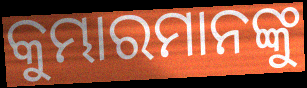
କୁମ୍ଭାରମାନଙ୍କୁ